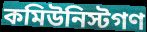
কমিউনিস্টগণ